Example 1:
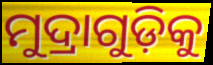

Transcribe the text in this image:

ମୁଦ୍ରାଗୁଡ଼ିକୁ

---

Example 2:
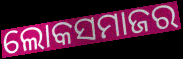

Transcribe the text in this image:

ଲୋକସମାଜର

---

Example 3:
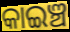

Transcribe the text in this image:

କାଇଞ୍ଚ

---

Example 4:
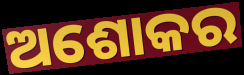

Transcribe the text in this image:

ଅଶୋକର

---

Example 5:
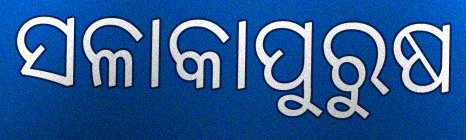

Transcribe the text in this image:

ସଳାକାପୁରୁଷ